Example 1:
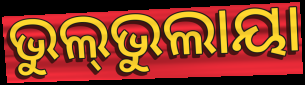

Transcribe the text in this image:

ଭୁଲ୍‌ଭୁଲାୟା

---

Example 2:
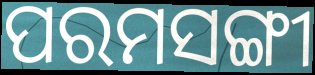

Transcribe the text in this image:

ପରମସଙ୍ଗୀ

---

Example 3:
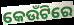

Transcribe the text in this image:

କେଉଁଟିରେ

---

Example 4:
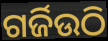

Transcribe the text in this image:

ଗର୍ଜିଉଠି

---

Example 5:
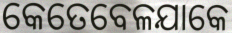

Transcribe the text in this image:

କେତେବେଳଯାକେ